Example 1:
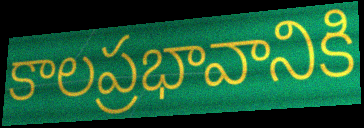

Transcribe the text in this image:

కాలప్రభావానికి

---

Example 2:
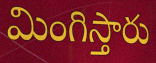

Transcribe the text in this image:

మింగిస్తారు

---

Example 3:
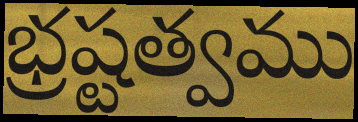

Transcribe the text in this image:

భ్రష్టత్వము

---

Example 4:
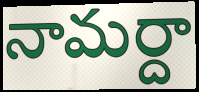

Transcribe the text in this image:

నామర్దా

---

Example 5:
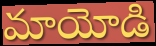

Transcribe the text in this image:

మాయోడి